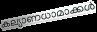
കല്യാണധാമാക്കൾ